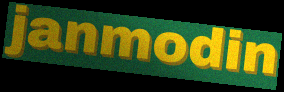
janmodin